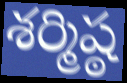
శర్మిష్ఠ